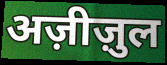
अज़ीज़ुल